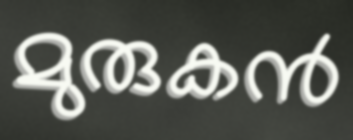
മുരുകൻ